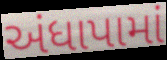
અંધાપામાં